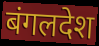
बंगलदेश